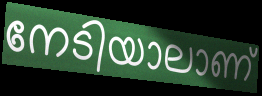
നേടിയാലാണ്